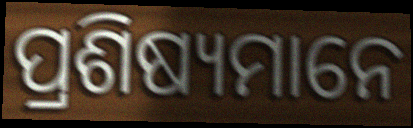
ପ୍ରଶିଷ୍ୟମାନେ